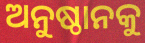
ଅନୁଷ୍ଠାନକୁ